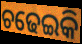
ଚଢେଇକି